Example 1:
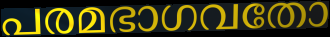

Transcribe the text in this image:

പരമഭാഗവതോ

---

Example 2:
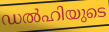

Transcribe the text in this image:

ഡൽഹിയുടെ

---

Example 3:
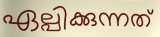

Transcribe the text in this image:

ഏല്പിക്കുന്നത്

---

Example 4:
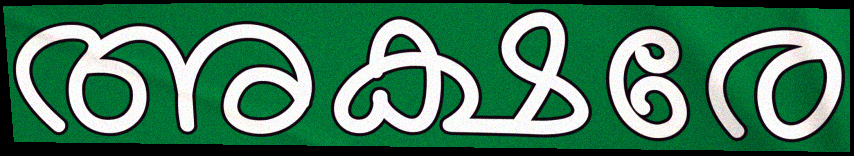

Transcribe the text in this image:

അക്ഷരേ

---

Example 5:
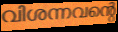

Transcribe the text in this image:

വിശന്നവന്റെ